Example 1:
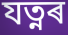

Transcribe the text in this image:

যত্নৰ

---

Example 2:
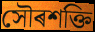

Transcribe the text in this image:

সৌৰশক্তি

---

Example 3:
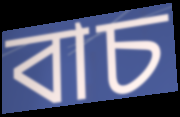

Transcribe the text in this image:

বাচ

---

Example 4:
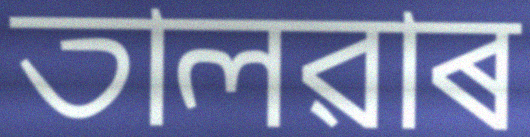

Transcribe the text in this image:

তালৱাৰ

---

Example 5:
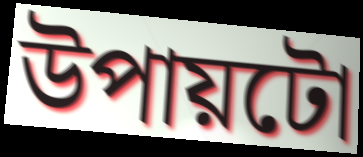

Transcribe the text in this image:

উপায়টো